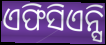
ଏଫିସିଏନ୍ସି